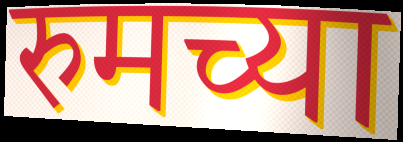
रुमच्या